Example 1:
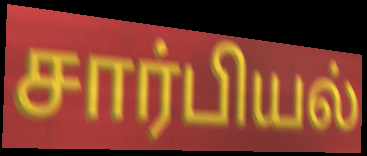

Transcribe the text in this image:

சார்பியல்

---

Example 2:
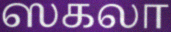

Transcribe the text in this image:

ஸகலா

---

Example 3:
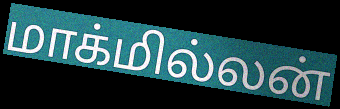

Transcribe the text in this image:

மாக்மில்லன்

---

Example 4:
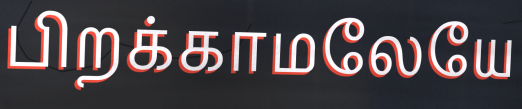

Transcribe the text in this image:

பிறக்காமலேயே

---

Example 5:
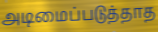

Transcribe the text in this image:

அடிமைப்படுத்தாத